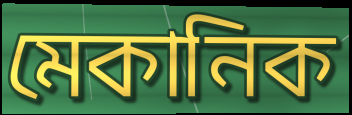
মেকানিক